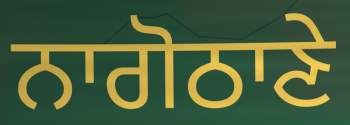
ਨਾਗੋਠਾਣੇ